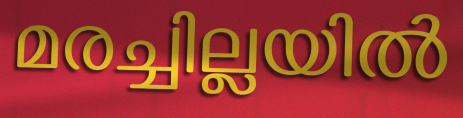
മരച്ചില്ലയിൽ